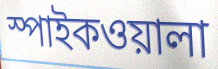
স্পাইকওয়ালা